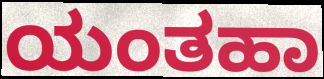
ಯಂತಹಾ